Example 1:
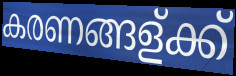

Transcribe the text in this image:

കരണങ്ങള്ക്ക്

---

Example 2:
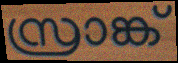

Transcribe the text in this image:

സ്രാങ്ക്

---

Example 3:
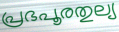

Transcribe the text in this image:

പ്രഭപൂരതുല്യ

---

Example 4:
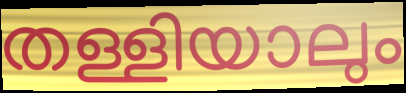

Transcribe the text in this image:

തള്ളിയാലും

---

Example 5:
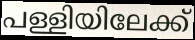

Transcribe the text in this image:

പള്ളിയിലേക്ക്